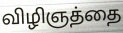
விழிஞத்தை